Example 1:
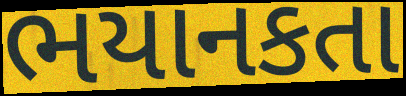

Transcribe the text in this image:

ભયાનકતા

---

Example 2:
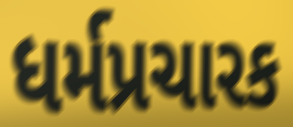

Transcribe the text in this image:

ધર્મપ્રચારક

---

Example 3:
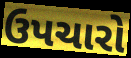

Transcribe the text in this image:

ઉપચારો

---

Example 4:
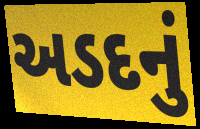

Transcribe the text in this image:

અડદનું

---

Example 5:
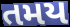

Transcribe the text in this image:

તમય